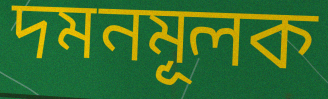
দমনমূলক